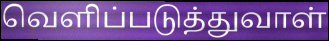
வெளிப்படுத்துவாள்